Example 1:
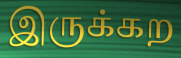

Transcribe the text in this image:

இருக்கற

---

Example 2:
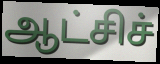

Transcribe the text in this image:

ஆட்சிச்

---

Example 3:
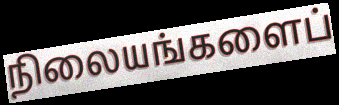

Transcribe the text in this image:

நிலையங்களைப்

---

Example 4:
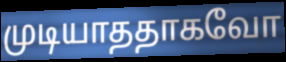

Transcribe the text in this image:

முடியாததாகவோ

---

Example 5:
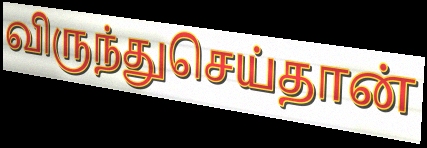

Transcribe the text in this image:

விருந்துசெய்தான்